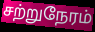
சற்றுநேரம்